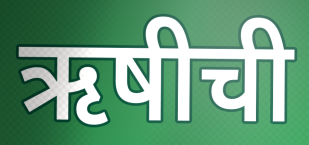
ऋषीची